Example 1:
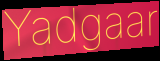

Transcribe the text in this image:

Yadgaar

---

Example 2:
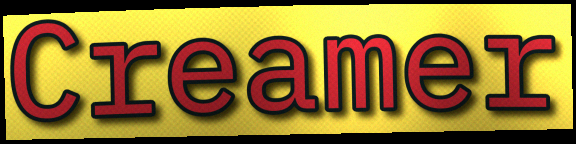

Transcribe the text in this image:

Creamer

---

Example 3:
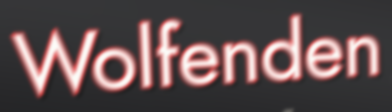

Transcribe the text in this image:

Wolfenden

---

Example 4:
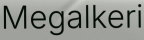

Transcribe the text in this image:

Megalkeri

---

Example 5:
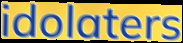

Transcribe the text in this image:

idolaters